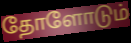
தோளோடும்